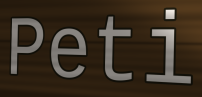
Peti